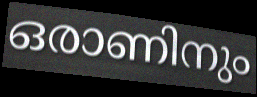
ഒരാണിനും